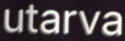
utarva